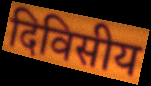
दिविसीय